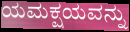
ಯಮಕ್ಷಯವನ್ನು